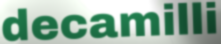
decamilli